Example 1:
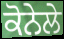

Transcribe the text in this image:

ਕੋਨੇਲੇ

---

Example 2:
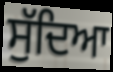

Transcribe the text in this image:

ਸੁੱਦਿਆ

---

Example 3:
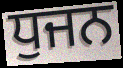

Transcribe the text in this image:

ਧੁਜਨ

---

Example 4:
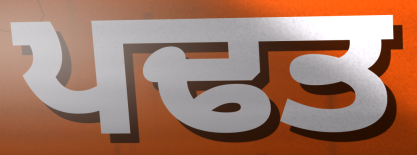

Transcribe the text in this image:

ਪਢਤ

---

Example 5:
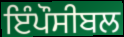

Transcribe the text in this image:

ਇੰਪੌਸੀਬਲ